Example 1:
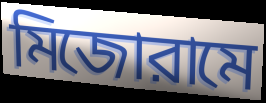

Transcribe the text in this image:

মিজোরামে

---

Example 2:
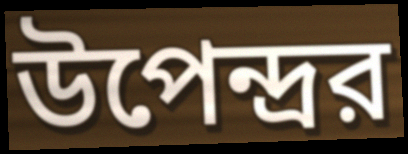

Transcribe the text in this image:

উপেন্দ্রর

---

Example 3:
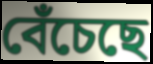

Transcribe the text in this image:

বেঁচেছে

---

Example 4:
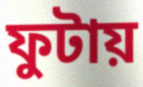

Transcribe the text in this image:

ফুটায়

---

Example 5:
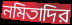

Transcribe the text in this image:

নমিতাদির